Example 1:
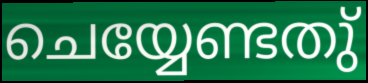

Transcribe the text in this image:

ചെയ്യേണ്ടതു്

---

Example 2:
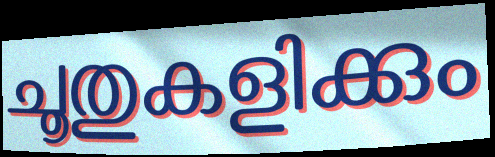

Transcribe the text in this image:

ചൂതുകളിക്കും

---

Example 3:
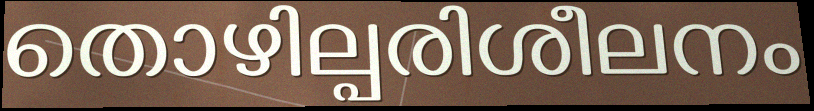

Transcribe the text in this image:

തൊഴില്പരിശീലനം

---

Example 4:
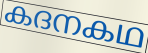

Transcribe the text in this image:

കദനകഥ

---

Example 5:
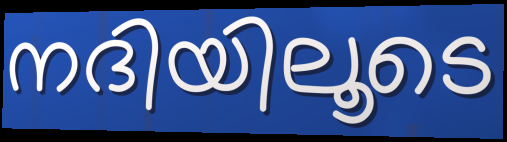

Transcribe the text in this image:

നദിയിലൂടെ